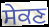
ਸੇਕਣ